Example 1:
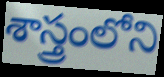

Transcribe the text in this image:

శాస్త్రంలోని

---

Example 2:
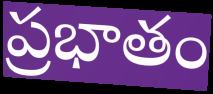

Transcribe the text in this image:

ప్రభాతం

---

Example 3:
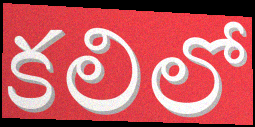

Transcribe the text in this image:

కలిలో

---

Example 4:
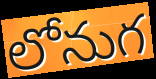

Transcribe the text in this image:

లోనుగ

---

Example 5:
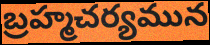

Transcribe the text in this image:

బ్రహ్మచర్యమున